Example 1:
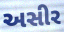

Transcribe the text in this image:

અસીર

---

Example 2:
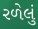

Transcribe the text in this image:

રળેલું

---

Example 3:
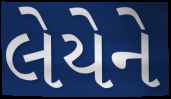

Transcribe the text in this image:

લેયેને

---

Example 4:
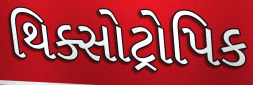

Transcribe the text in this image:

થિક્સોટ્રોપિક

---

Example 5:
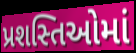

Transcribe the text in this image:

પ્રશસ્તિઓમાં